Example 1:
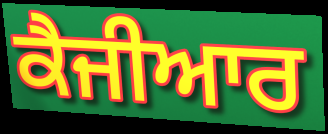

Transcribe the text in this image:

ਕੈਜੀਆਰ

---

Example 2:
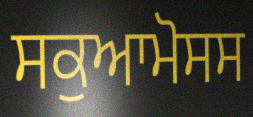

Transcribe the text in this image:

ਸਕੁਆਮੋਸਸ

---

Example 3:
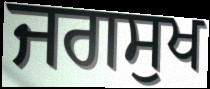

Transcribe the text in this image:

ਜਗਸੁਖ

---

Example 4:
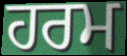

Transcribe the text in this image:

ਹਰਮ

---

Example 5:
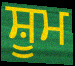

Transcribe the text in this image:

ਸ਼ੂਮ